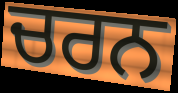
ਚਰਨ